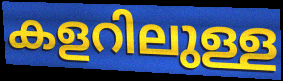
കളറിലുള്ള